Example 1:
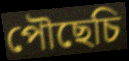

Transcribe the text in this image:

পৌছেচি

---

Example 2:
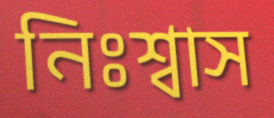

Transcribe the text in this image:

নিঃশ্বাস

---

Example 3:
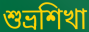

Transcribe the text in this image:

শুভ্রশিখা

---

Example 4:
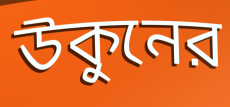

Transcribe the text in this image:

উকুনের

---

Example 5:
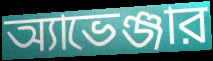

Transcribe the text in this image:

অ্যাভেঞ্জার